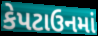
કેપટાઉનમાં